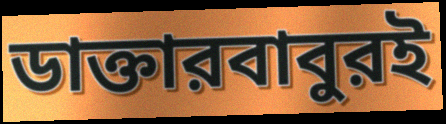
ডাক্তারবাবুরই